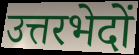
उत्तरभेदों